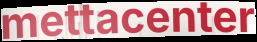
mettacenter